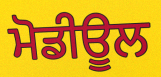
ਮੋਡੀਊਲ